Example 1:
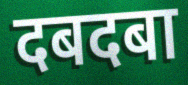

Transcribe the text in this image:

दबदबा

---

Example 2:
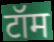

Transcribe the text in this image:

टॉम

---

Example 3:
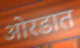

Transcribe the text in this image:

ओरडात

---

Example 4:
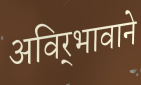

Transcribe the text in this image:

अविर्भावाने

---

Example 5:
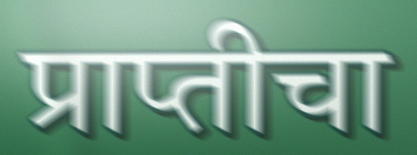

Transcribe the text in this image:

प्राप्तीचा